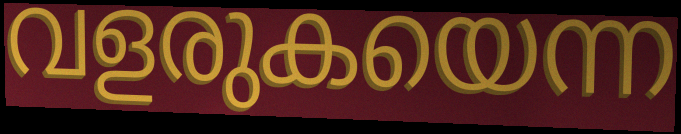
വളരുകയെന്ന